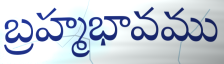
బ్రహ్మభావము